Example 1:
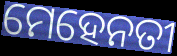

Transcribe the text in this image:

ମେହେନତୀ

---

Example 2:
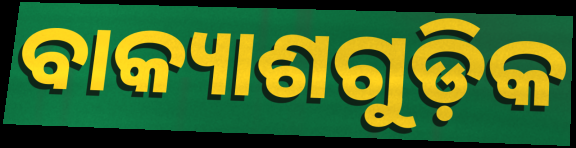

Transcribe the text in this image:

ବାକ୍ୟାଶଗୁଡ଼ିକ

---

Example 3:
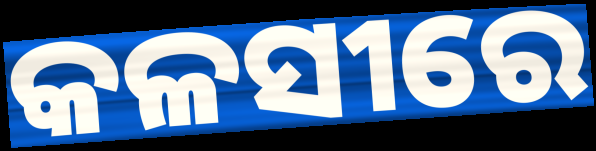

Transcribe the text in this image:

କଳସୀରେ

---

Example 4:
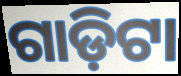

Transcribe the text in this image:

ଗାଡ଼ିଟା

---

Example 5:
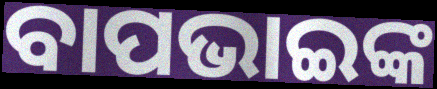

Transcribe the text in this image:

ବାପଭାଇଙ୍କ